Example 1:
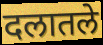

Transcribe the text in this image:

दलातले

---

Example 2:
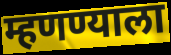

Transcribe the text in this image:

म्हणण्याला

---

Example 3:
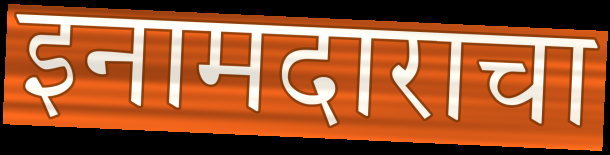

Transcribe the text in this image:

इनामदाराचा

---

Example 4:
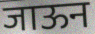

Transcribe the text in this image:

जाऊन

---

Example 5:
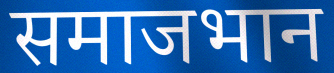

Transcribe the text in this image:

समाजभान